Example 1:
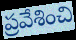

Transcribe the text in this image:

ప్రవేశించి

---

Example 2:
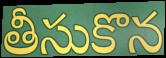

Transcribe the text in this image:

తీసుకొన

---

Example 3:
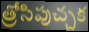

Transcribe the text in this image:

త్రోసిపుచ్చక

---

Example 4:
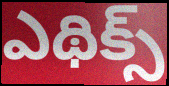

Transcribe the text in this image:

ఎథిక్స్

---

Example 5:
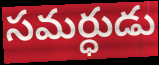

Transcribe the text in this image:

సమర్ధుడు